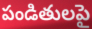
పండితులపై